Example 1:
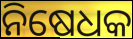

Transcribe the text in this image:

ନିଷେଧକ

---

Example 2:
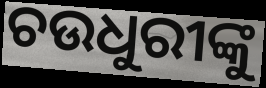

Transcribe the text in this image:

ଚଉଧୁରୀଙ୍କୁ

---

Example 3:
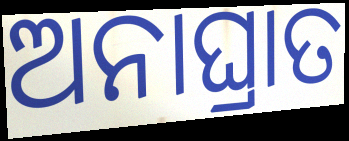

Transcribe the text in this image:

ଅନାଘ୍ରାତ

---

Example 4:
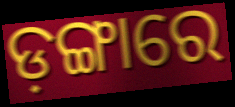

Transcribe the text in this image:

ଡ଼ଙ୍ଗାରେ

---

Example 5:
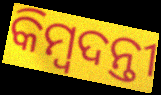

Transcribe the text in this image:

କିମ୍ଵଦନ୍ତୀ